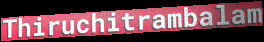
Thiruchitrambalam